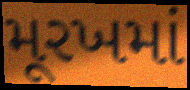
મૂરખમાં